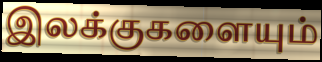
இலக்குகளையும்